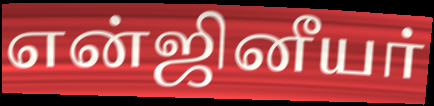
என்ஜினீயர்